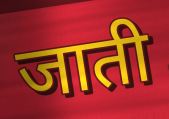
जाती